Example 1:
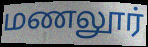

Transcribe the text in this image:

மணலூர்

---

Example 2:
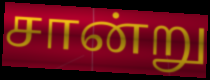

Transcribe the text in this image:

சான்று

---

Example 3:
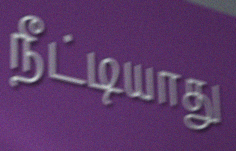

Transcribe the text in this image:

நீட்டியாது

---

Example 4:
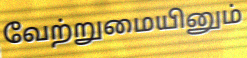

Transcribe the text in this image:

வேற்றுமையினும்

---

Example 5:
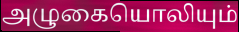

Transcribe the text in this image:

அழுகையொலியும்